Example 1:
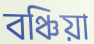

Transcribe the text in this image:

বঞ্চিয়া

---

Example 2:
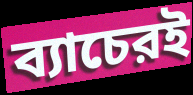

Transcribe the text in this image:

ব্যাচেরই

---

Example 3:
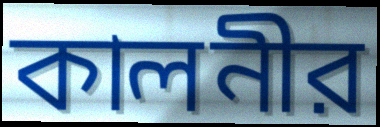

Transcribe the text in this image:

কালনীর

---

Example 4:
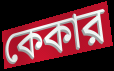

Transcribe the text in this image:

কেকার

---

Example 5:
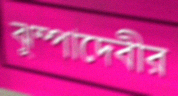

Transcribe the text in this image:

ঝুম্পাদেবীর